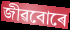
জীৱবোৰে